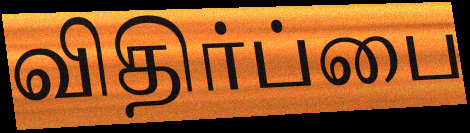
விதிர்ப்பை